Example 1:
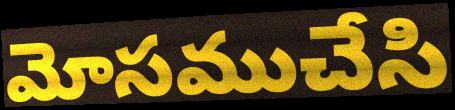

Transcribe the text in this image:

మోసముచేసి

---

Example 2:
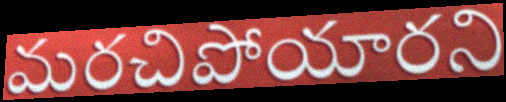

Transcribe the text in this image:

మరచిపోయారని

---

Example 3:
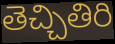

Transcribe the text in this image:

తెచ్చితిరి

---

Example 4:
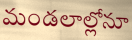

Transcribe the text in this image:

మండలాల్లోనూ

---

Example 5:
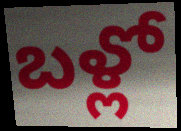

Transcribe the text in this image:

బళ్లో